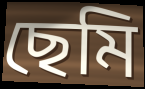
ছেমি